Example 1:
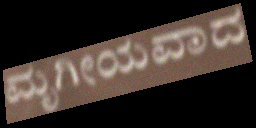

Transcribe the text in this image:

ಮೃಗೀಯವಾದ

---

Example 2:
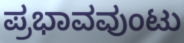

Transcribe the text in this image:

ಪ್ರಭಾವವುಂಟು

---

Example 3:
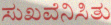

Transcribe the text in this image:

ಸುಖವೆನಿಸಿತು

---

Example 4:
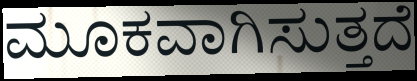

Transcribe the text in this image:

ಮೂಕವಾಗಿಸುತ್ತದೆ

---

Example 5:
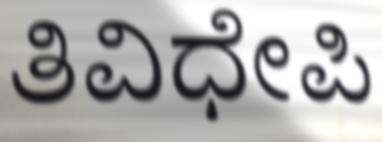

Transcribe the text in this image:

ತಿವಿಧೇಪಿ